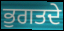
ਭੁਗਤਦੇ